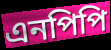
এনপিপি